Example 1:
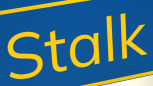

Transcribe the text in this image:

Stalk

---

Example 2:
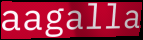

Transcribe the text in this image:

aagalla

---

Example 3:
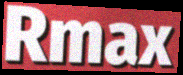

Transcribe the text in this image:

Rmax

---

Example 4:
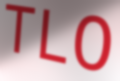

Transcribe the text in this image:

TLO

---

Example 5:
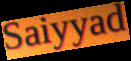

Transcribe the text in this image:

Saiyyad